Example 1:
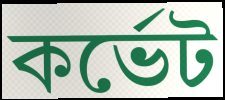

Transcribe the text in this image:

কর্ভেট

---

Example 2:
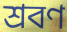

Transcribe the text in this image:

শ্রবণ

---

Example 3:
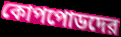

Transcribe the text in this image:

কোপপোডদের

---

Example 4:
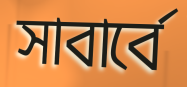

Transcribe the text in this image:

সাবার্বে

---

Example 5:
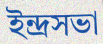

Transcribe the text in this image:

ইন্দ্রসভা